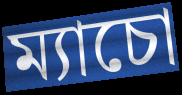
ম্যাচো